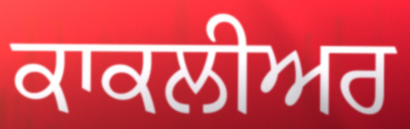
ਕਾਕਲੀਅਰ